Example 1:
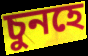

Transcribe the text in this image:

চুনহে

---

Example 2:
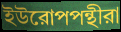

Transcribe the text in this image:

ইউরোপপন্থীরা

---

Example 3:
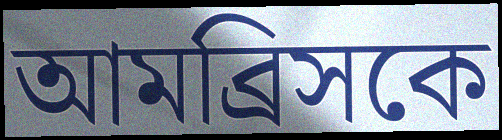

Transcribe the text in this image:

আমব্রিসকে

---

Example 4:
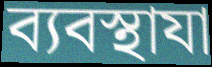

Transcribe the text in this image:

ব্যবস্থাযা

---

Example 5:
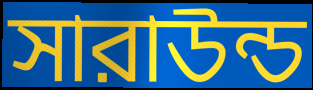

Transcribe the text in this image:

সারাউন্ড